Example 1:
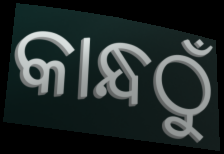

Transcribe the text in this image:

କାନ୍ଧଠୁଁ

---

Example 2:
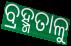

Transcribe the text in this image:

ବ୍ରହ୍ମତାଳୁ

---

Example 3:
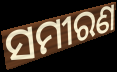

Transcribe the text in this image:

ସମୀରଣ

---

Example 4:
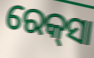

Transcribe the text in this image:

ରେକ୍‍ସା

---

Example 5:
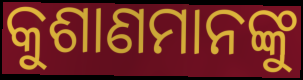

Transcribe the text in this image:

କୁଶାଣମାନଙ୍କୁ